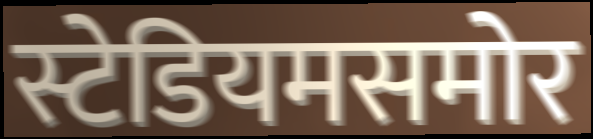
स्टेडियमसमोर